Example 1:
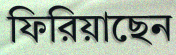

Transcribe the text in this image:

ফিরিয়াছেন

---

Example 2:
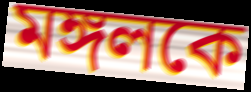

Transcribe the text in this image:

মঙ্গলকে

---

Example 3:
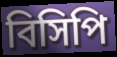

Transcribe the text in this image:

বিসিপি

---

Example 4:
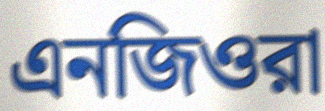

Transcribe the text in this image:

এনজিওরা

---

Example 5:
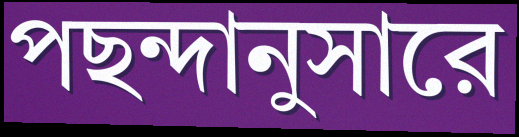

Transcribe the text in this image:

পছন্দানুসারে